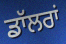
ਡਾੱਲਰਾਂ